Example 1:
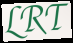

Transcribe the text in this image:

LRT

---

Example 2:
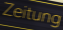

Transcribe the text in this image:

Zeitung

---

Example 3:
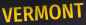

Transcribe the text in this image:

VERMONT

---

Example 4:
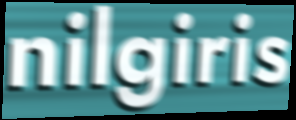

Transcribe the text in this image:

nilgiris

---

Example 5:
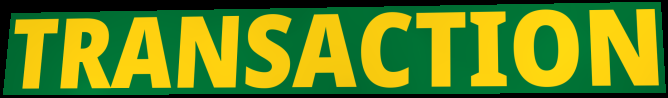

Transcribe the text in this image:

TRANSACTION